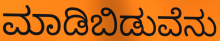
ಮಾಡಿಬಿಡುವೆನು